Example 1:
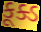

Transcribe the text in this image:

કૂક્ડ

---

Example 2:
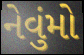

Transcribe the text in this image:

નેવુંમો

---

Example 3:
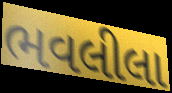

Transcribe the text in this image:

ભવલીલા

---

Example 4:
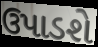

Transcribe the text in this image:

ઉપાડશે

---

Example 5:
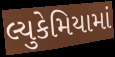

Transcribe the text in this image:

લ્યુકેમિયામાં